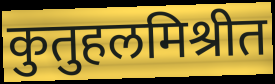
कुतुहलमिश्रीत